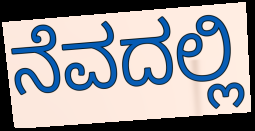
ನೆವದಲ್ಲಿ